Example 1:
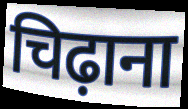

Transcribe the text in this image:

चिढ़ाना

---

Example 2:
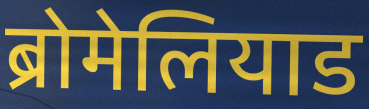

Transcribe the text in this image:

ब्रोमेलियाड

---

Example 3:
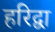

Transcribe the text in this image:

हरिद्वा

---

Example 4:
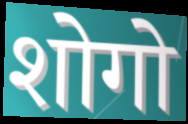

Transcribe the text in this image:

शोगो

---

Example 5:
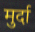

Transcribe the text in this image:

मुर्दा